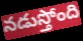
నడుస్తోంది